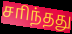
சரிந்தது